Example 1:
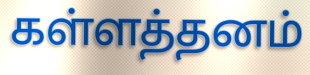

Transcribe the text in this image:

கள்ளத்தனம்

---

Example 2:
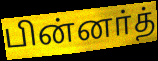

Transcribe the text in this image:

பின்னர்த்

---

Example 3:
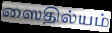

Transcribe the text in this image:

ஸைதில்யம்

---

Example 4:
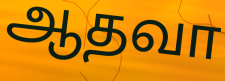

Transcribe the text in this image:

ஆதவா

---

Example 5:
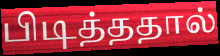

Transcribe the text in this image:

பிடித்ததால்